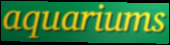
aquariums